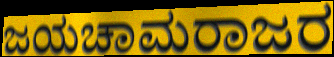
ಜಯಚಾಮರಾಜರ